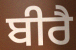
ਬੀਰੈ